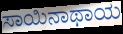
ಸಾಯಿನಾಥಾಯ